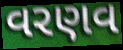
વરણવ